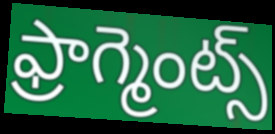
ఫ్రాగ్మెంట్స్